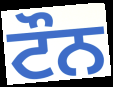
ਟੌਨ